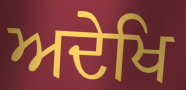
ਅਦੇਖਿ